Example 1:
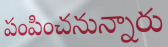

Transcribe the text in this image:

పంపించనున్నారు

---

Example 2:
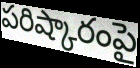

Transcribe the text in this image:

పరిష్కారంపై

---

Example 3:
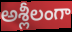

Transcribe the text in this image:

అశ్లీలంగా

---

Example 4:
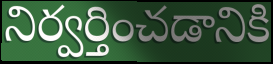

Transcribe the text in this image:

నిర్వర్తించడానికి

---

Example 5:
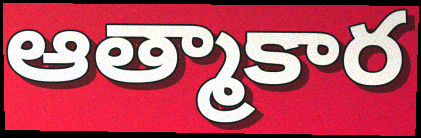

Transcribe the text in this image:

ఆత్మాకార